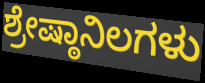
ಶ್ರೇಷ್ಠಾನಿಲಗಳು